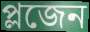
প্লজেন